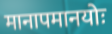
मानापमानयोः